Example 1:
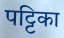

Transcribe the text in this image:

पट्टिका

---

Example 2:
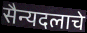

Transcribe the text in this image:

सैन्यदलाचे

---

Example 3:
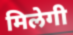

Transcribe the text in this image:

मिलेगी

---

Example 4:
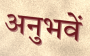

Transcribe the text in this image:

अनुभवें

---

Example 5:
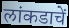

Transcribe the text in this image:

लांकडाचें